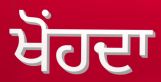
ਖੋਂਹਦਾ